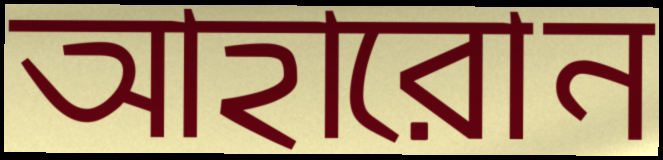
আহারোন